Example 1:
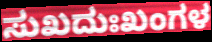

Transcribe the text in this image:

ಸುಖದುಃಖಂಗಳ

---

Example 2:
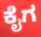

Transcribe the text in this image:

ಕೈಗ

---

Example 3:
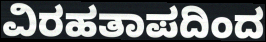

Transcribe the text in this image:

ವಿರಹತಾಪದಿಂದ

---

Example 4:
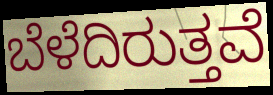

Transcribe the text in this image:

ಬೆಳೆದಿರುತ್ತವೆ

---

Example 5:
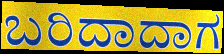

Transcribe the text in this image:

ಬರಿದಾದಾಗ